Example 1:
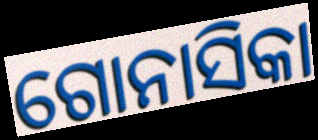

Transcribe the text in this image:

ଗୋନାସିକା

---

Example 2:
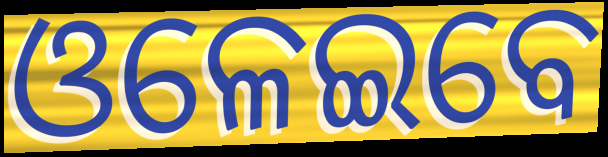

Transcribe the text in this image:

ଓଳେଇବେ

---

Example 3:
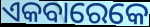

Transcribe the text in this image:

ଏକବାରେକେ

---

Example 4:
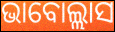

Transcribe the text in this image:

ଭାବୋଲ୍ଲାସ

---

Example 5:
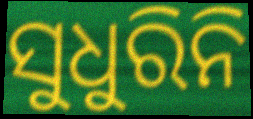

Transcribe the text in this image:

ସୁଧୁରିନି